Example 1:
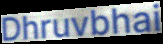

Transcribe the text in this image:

Dhruvbhai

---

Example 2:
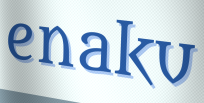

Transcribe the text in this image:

enaku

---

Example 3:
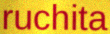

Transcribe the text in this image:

ruchita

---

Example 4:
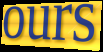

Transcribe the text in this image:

ours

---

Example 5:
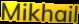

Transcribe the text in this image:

Mikhail